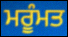
ਮਰੂੰਮਤ